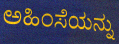
ಅಹಿಂಸೆಯನ್ನು